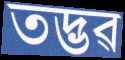
তদ্ভৱ